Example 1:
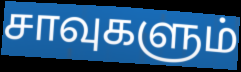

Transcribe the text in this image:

சாவுகளும்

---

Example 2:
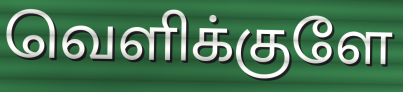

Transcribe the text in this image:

வெளிக்குளே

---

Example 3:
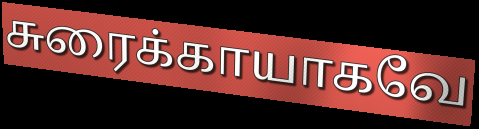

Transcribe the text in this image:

சுரைக்காயாகவே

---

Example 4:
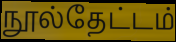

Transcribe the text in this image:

நூல்தேட்டம்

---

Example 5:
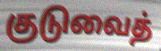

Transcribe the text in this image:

குடுவைத்